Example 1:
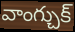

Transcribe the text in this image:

వాంగ్చుక్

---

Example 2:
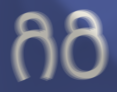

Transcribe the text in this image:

గిరి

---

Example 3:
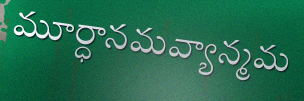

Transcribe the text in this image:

మూర్ధానమవ్యాన్మమ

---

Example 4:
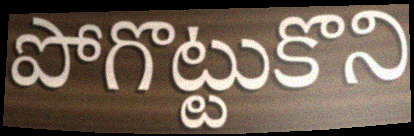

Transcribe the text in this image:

పోగొట్టుకొని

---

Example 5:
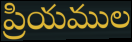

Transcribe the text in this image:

ప్రియముల